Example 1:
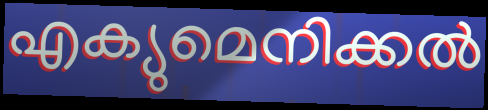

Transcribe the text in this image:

എക്യുമെനിക്കൽ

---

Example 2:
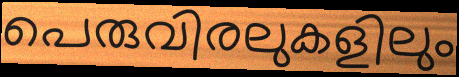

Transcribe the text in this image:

പെരുവിരലുകളിലും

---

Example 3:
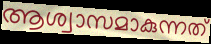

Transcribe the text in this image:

ആശ്വാസമാകുന്നത്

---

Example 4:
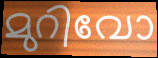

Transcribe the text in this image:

മുറിവോ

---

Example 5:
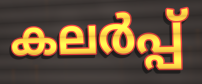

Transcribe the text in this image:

കലർപ്പ്